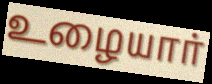
உழையார்